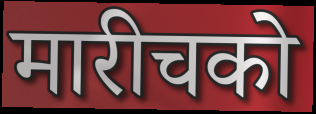
मारीचको